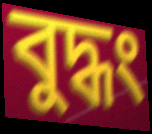
বুদ্ধং